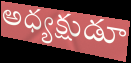
అధ్యక్షుడూ